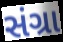
સંગ્રા